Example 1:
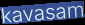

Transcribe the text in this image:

kavasam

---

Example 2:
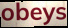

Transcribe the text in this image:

obeys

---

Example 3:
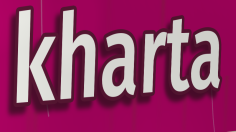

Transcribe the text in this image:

kharta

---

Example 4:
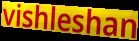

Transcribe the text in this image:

vishleshan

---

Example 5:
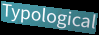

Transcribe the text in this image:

Typological